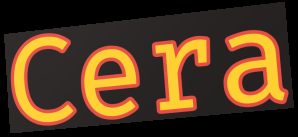
Cera